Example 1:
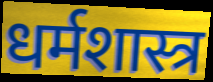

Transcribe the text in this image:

धर्मशास्त्र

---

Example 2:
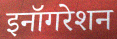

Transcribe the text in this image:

इनॉगरेशन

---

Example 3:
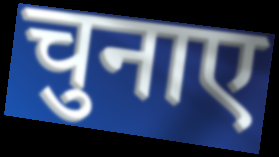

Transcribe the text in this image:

चुनाए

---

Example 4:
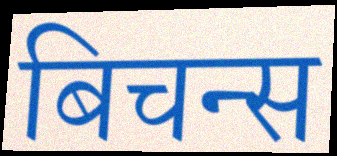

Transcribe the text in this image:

बिचन्स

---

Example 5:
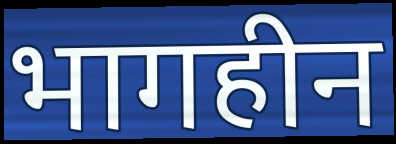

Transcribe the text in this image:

भागहीन